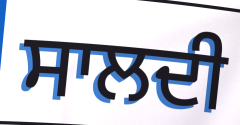
ਸਾਲਦੀ